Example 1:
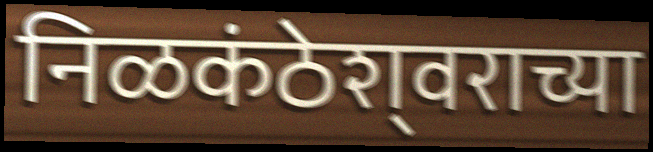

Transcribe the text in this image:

निळकंठेश्वराच्या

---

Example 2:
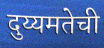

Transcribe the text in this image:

दुय्यमतेची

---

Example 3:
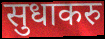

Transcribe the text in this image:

सुधाकरु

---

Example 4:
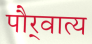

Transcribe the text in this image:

पौर्वात्य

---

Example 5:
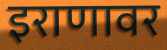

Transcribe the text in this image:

इराणावर